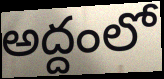
అద్దంలో